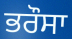
ਭਰੌਸਾ